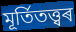
মূৰ্তিতত্ত্বৰ